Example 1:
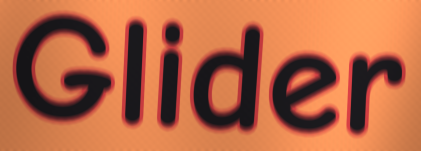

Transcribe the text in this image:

Glider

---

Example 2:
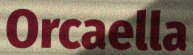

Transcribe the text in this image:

Orcaella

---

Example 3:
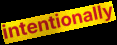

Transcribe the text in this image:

intentionally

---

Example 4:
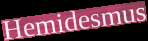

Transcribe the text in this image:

Hemidesmus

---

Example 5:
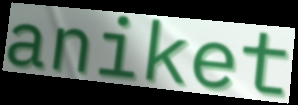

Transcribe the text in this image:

aniket